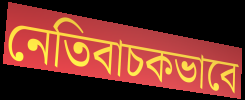
নেতিবাচকভাবে